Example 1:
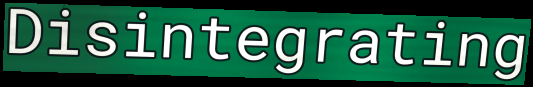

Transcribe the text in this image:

Disintegrating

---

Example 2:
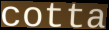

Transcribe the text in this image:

cotta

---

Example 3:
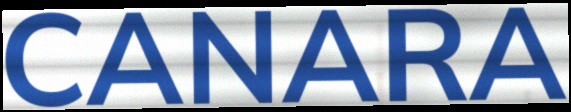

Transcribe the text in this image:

CANARA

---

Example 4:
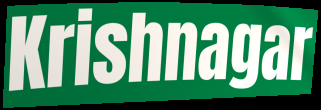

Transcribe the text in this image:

Krishnagar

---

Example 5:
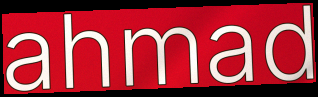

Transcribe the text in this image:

ahmad